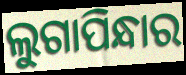
ଲୁଗାପିନ୍ଧାର